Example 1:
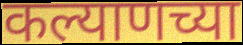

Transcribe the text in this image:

कल्याणच्या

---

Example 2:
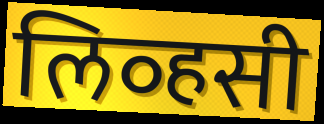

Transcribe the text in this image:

लिव्हसी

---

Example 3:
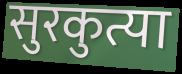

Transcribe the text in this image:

सुरकुत्या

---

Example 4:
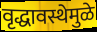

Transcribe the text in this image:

वृद्धावस्थेमुळे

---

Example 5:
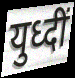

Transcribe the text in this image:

युध्दीं